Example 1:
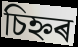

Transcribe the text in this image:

চিহ্নৰ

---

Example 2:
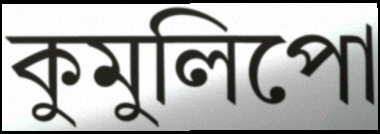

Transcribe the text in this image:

কুমুলিপো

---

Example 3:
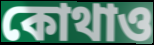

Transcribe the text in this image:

কোথাও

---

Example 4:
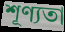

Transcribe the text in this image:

শূণ্যতা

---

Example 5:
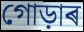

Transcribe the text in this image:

গোড়াৰ